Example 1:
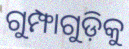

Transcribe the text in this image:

ଗୁମ୍ଫାଗୁଡ଼ିକୁ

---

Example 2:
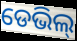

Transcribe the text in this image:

ଡେଭିଲ୍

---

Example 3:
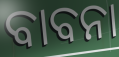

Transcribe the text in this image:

ବାବନା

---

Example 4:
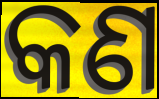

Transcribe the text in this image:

କଣ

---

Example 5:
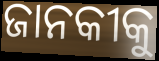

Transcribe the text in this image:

ଜାନକୀକୁ